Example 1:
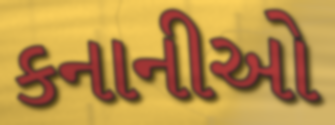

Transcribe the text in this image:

કનાનીઓ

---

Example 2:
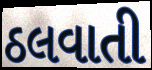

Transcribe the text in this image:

ઠલવાતી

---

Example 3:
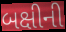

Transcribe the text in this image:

બક્ષીની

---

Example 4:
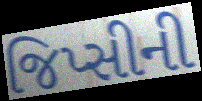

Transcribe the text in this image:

જિપ્સીની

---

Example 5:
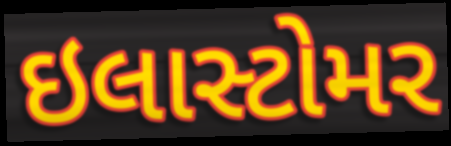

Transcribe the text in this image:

ઇલાસ્ટોમર